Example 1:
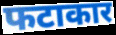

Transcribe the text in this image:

फटाकार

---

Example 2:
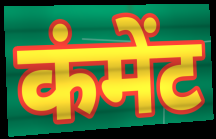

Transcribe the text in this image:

कंमेंट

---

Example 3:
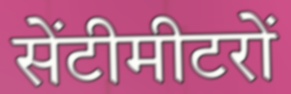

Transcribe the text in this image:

सेंटीमीटरों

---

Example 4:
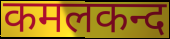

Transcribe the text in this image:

कमलकन्द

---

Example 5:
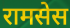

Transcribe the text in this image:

रामसेस